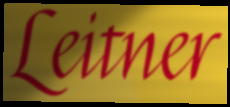
Leitner